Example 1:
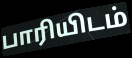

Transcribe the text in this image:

பாரியிடம்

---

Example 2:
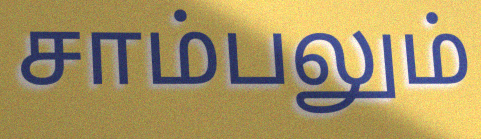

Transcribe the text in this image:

சாம்பலும்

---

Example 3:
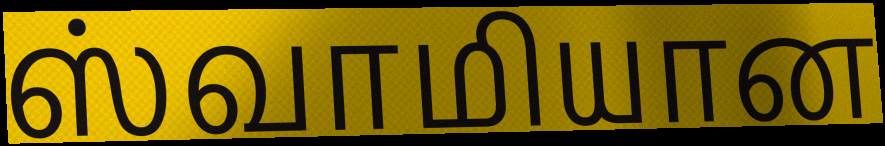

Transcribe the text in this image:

ஸ்வாமியான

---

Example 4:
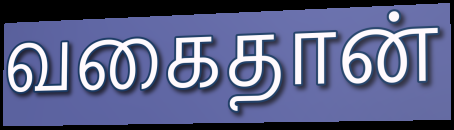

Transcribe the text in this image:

வகைதான்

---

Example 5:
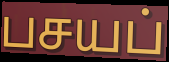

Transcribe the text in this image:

பசயப்